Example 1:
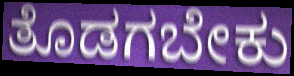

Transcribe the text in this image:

ತೊಡಗಬೇಕು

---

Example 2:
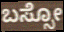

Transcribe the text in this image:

ಬಸ್ಸೋ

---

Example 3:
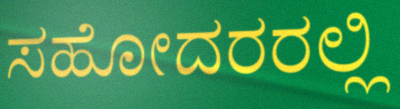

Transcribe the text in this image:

ಸಹೋದರರಲ್ಲಿ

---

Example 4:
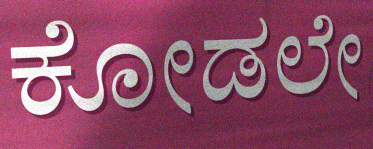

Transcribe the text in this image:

ಕೋಡಲೇ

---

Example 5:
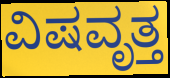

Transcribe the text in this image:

ವಿಷವೃತ್ತ